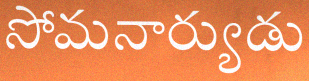
సోమనార్యుడు